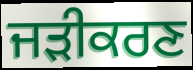
ਜੜੀਕਰਣ